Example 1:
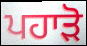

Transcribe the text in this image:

ਪਹਾੜੋ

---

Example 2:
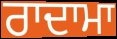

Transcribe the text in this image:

ਰਾਦਾਮਾ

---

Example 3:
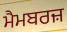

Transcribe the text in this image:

ਮੈਮਬਰਜ਼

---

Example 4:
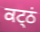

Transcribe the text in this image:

ਕਟ੍ਠਂ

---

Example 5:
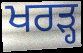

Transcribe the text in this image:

ਖਰੜ੍ਹ